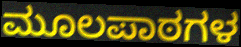
ಮೂಲಪಾಠಗಳ